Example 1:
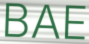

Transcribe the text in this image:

BAE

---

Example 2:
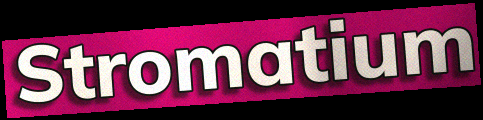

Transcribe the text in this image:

Stromatium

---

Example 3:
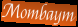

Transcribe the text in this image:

Mombaym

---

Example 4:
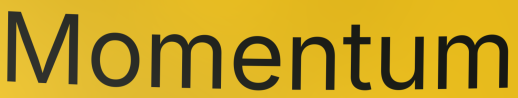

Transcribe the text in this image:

Momentum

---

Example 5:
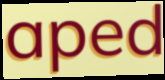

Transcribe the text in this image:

aped